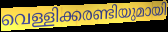
വെള്ളിക്കരണ്ടിയുമായി